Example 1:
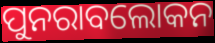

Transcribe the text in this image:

ପୁନରାବଲୋକନ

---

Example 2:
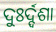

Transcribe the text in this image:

ଦୁଃର୍ଦ୍ଦଶା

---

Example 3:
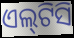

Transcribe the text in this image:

ଏଲ୍‌ଟିସି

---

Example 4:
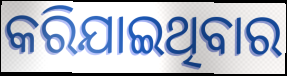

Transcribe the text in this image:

କରିଯାଇଥିବାର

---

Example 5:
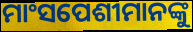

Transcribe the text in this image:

ମାଂସପେଶୀମାନଙ୍କୁ